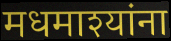
मधमाश्यांना